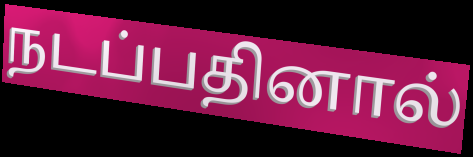
நடப்பதினால்